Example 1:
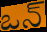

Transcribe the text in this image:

ఒన్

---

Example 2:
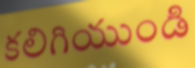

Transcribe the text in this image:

కలిగియుండి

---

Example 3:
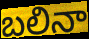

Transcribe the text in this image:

బలినా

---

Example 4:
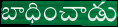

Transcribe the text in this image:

బాధించాడు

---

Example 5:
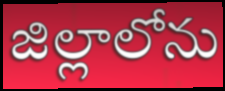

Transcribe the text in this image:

జిల్లాలోను